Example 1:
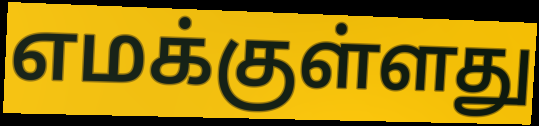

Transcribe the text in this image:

எமக்குள்ளது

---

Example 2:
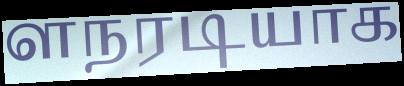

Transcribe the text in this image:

ளநரடியாக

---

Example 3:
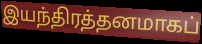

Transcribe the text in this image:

இயந்திரத்தனமாகப்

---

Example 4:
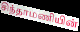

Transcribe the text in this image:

சிந்தாமணியின்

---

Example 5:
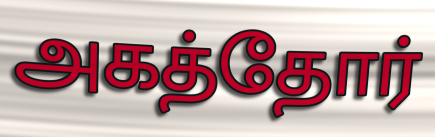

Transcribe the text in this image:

அகத்தோர்